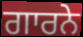
ਗਾਰਨੇ